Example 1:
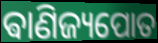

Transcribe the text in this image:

ଵାଣିଜ୍ୟପୋତ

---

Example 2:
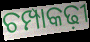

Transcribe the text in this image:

ଚମ୍ପାକଢ଼ୀ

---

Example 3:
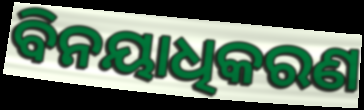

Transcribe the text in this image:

ବିନୟାଧିକରଣ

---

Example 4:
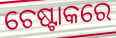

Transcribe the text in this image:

ଚେଷ୍ଟାକରେ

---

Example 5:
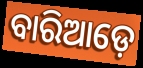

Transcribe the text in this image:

ବାରିଆଡ଼େ